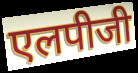
एलपीजी